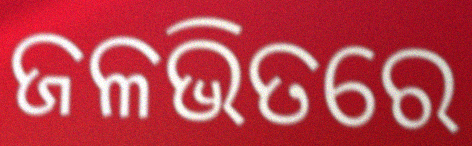
ଜଳଭିତରେ